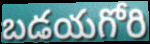
బడయగోరి